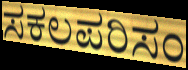
ಸಕಲಪರಿಸಂ